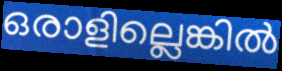
ഒരാളില്ലെങ്കിൽ